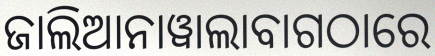
ଜାଲିଆନାୱାଲାବାଗଠାରେ